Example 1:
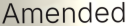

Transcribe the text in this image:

Amended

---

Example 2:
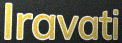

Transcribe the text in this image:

Iravati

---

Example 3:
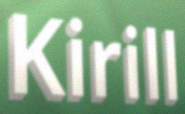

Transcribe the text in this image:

Kirill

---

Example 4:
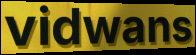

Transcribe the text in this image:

vidwans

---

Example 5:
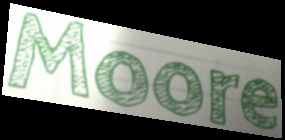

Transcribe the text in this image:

Moore